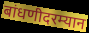
बांधणीदरम्यान